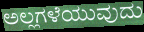
ಅಲ್ಲಗಳೆಯುವುದು